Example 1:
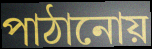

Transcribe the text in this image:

পাঠানোয়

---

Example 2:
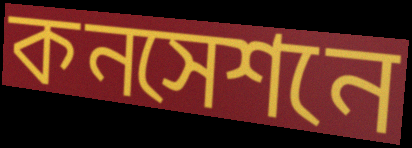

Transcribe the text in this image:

কনসেশনে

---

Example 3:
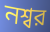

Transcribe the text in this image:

নশ্বর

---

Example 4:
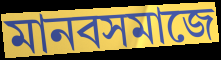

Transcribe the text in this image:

মানবসমাজে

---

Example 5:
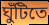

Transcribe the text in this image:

ঘুঁটিতে